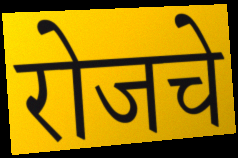
रोजचे